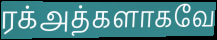
ரக்அத்களாகவே